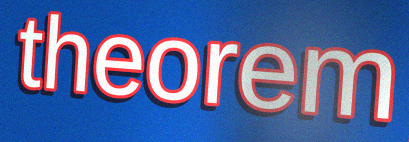
theorem